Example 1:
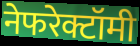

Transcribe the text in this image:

नेफरेक्टॉमी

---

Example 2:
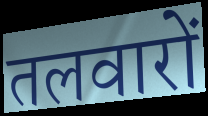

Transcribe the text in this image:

तलवारों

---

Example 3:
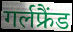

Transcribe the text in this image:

गर्लफ्रैंड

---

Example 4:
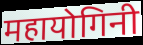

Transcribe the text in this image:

महायोगिनी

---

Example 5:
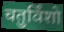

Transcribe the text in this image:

चतुर्विंशो